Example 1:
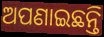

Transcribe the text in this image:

ଅପଣାଇଛନ୍ତି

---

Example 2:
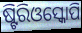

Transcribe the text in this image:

ଷ୍ଟିରିଓସ୍କୋପି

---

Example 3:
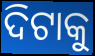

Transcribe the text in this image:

ଦିଟାକୁ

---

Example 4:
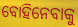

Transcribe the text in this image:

ବୋହିନେବାକୁ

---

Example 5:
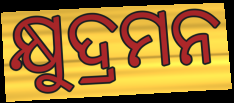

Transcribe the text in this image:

କ୍ଷୁଦ୍ରମନ